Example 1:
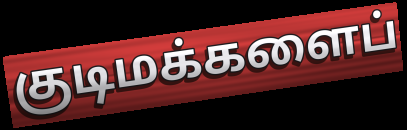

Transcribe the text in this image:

குடிமக்களைப்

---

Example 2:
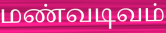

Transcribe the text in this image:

மண்வடிவம்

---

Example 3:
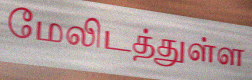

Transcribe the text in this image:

மேலிடத்துள்ள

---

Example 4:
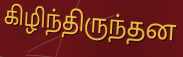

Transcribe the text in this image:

கிழிந்திருந்தன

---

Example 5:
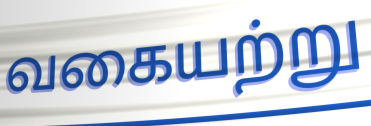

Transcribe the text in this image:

வகையற்று